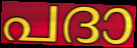
പദാ